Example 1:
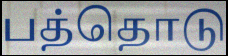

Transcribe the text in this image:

பத்தொடு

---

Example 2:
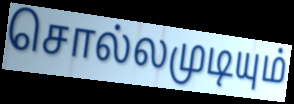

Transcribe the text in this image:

சொல்லமுடியும்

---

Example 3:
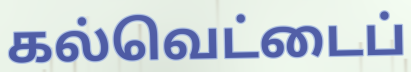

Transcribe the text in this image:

கல்வெட்டைப்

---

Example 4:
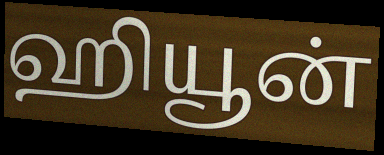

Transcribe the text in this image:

ஹியூன்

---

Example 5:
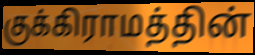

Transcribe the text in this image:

குக்கிராமத்தின்